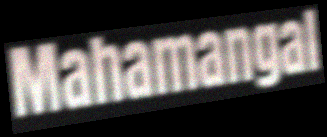
Mahamangal